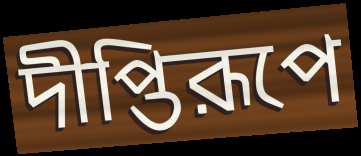
দীপ্তিরূপে